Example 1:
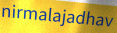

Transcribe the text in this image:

nirmalajadhav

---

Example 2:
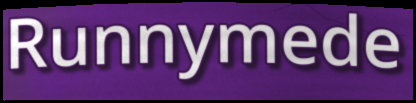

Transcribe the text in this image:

Runnymede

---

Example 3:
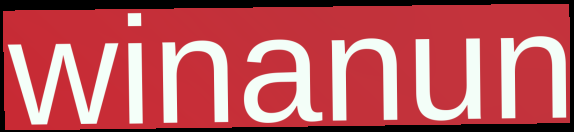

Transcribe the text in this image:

winanun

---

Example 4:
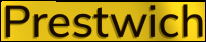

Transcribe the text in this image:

Prestwich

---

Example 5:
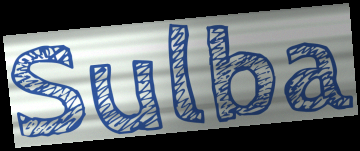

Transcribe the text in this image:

Sulba